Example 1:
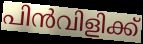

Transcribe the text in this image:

പിൻവിളിക്ക്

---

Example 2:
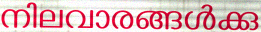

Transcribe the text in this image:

നിലവാരങ്ങൾക്കു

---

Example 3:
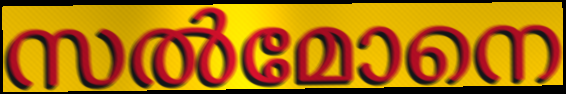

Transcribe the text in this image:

സൽമോനെ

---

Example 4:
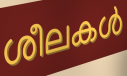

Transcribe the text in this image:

ശീലകൾ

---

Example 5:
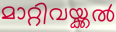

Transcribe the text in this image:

മാറ്റിവയ്ക്കൽ